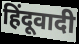
हिंदूवादी